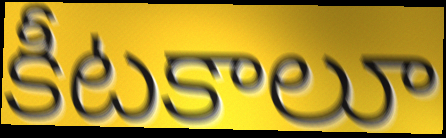
కీటకాలూ